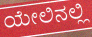
ಯೇಲಿನಲ್ಲಿ